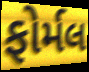
ફોર્મલ